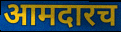
आमदारच